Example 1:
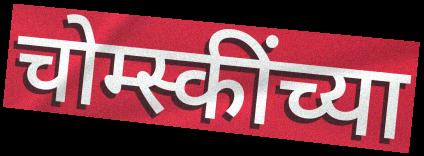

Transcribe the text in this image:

चोम्स्कींच्या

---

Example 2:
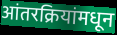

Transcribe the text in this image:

आंतरक्रियांमधून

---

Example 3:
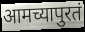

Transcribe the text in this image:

आमच्यापुरतं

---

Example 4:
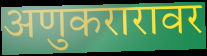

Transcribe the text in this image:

अणुकरारावर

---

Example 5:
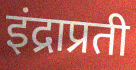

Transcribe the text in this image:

इंद्राप्रती